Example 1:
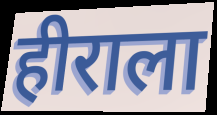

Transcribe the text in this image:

हीराला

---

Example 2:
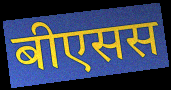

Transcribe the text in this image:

बीएसस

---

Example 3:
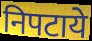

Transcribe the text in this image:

निपटाये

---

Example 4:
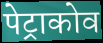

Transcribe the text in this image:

पेट्राकोव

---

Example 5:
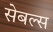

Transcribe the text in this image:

सेबल्स